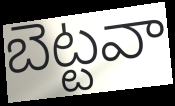
బెట్టవా